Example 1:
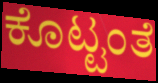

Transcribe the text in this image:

ಕೊಟ್ಟಂತೆ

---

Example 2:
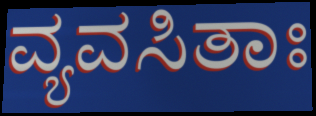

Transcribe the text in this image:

ವ್ಯವಸಿತಾಃ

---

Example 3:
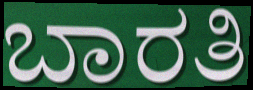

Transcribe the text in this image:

ಬಾರತಿ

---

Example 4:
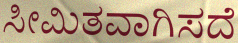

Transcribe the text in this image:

ಸೀಮಿತವಾಗಿಸದೆ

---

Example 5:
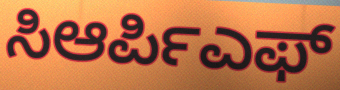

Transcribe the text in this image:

ಸಿಆರ್ಪಿಎಫ್